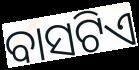
ବାସଟିଏ